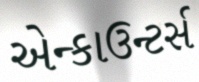
એન્કાઉન્ટર્સ